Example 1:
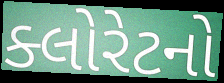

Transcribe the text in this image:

ક્લોરેટનો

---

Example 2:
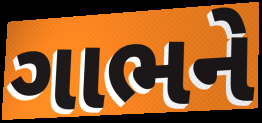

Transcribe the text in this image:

ગાભને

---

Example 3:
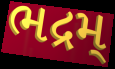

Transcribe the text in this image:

ભદ્રમ્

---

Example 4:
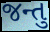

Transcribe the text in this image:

જન્તુ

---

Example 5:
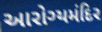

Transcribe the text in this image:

આરોગ્યમંદિર